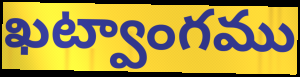
ఖట్వాంగము